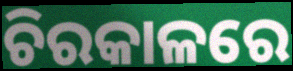
ଚିରକାଳରେ